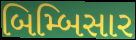
બિમ્બિસાર